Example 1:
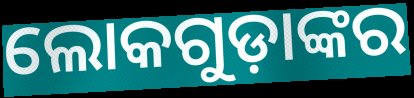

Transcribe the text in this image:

ଲୋକଗୁଡ଼ାଙ୍କର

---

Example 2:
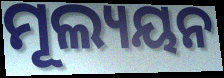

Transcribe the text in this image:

ମୂଲ୍ୟୟନ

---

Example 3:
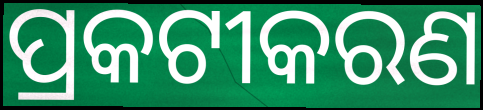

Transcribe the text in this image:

ପ୍ରକଟୀକରଣ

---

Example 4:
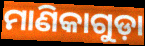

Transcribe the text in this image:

ମାଣିକାଗୁଡ଼ା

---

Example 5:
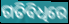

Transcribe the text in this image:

ଗତିବିଧିରେ